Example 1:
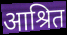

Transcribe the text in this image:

आश्रित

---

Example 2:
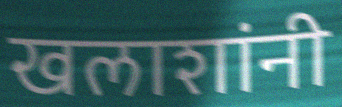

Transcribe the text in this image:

खलाशांनी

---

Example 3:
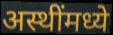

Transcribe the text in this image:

अस्थींमध्ये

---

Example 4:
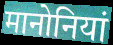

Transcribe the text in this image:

मानोनियां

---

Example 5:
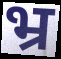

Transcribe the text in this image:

भ्र